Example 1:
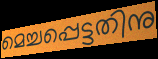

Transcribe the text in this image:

മെച്ചപ്പെട്ടതിനു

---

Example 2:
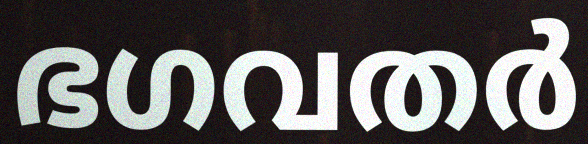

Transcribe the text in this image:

ഭഗവതർ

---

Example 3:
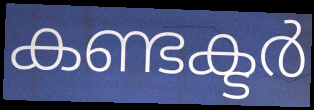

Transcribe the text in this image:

കണ്ടക്ടർ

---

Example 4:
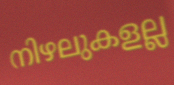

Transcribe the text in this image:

നിഴലുകളല്ല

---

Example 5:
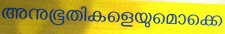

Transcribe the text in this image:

അനുഭൂതികളെയുമൊക്കെ